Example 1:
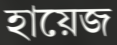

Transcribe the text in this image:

হায়েজ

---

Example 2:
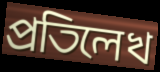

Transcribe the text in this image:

প্রতিলেখ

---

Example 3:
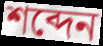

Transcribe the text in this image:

শব্দেন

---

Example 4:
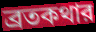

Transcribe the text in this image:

ব্রতকথার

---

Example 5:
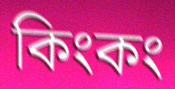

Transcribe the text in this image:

কিংকং